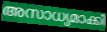
അസാധ്യമാക്കി